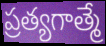
ప్రత్యగాత్మే